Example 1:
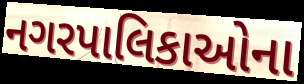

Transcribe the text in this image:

નગરપાલિકાઓના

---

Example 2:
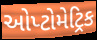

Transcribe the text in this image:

ઓપ્ટોમેટ્રિક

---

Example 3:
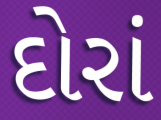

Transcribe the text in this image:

દોરાં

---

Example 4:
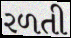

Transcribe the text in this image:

રળતી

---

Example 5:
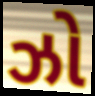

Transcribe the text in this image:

ઝો